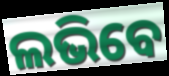
ଲଭିବେ